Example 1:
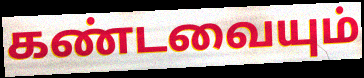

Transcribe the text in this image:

கண்டவையும்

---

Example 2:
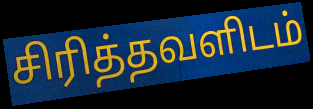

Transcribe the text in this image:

சிரித்தவளிடம்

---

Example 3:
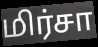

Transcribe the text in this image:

மிர்சா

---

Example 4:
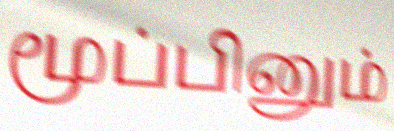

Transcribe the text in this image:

மூப்பினும்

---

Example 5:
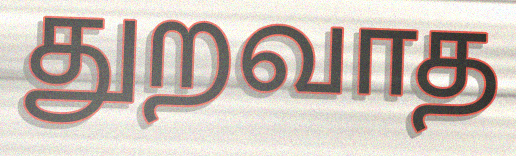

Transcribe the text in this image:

துறவாத